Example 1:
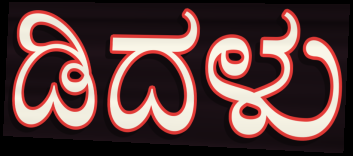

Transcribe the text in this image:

ಡಿದಳು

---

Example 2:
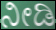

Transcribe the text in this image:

ನೀಡಿ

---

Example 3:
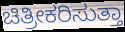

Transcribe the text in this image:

ಚಿತ್ರೀಕರಿಸುತ್ತಾ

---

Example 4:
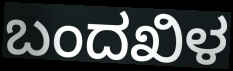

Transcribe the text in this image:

ಬಂದಖಿಳ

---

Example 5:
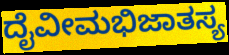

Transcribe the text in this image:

ದೈವೀಮಭಿಜಾತಸ್ಯ